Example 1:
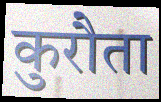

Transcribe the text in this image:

कुरौता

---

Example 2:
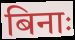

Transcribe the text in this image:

बिनाः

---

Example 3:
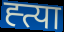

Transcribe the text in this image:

ह्त्या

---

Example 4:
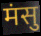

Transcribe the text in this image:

मंसु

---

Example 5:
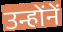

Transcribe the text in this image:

उन्होंनें